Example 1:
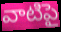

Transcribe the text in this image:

వాటిపై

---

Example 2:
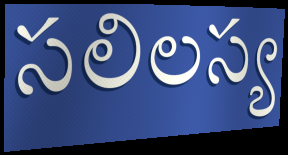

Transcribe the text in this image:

సలిలస్య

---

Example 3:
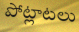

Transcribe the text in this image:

పోట్లాటలు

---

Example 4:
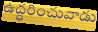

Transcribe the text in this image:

ఉద్ధరించువాడు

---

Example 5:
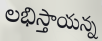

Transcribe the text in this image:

లభిస్తాయన్న